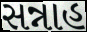
સન્નાહ